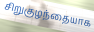
சிறுகுழந்தையாக